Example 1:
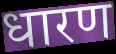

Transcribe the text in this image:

धारण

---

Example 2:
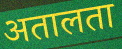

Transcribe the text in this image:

अतालता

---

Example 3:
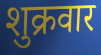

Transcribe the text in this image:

शुक्रवार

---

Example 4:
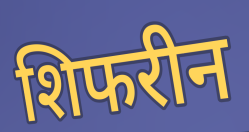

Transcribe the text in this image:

शिफरीन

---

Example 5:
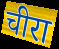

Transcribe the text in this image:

चीरा